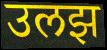
उलझ